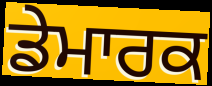
ਡੇਮਾਰਕ